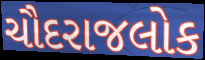
ચૌદરાજલોક